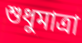
শুধুমাত্রা